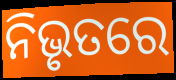
ନିଭୃତରେ